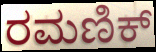
ರಮಣಿಕ್